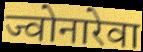
ज्वोनारेवा